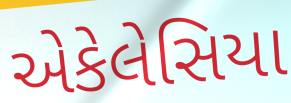
એકેલેસિયા